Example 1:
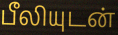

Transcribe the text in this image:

பீலியுடன்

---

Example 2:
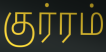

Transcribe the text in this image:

குர்ரம்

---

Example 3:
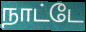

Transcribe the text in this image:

நாட்டே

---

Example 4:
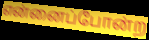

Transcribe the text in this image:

என்னைப்போன்ற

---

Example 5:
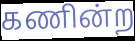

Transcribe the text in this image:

கணின்ற